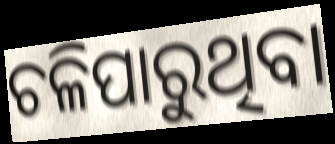
ଚଳିପାରୁଥିବା